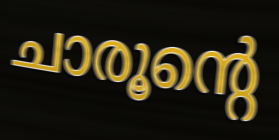
ചാരൂന്റെ